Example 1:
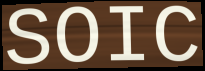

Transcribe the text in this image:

SOIC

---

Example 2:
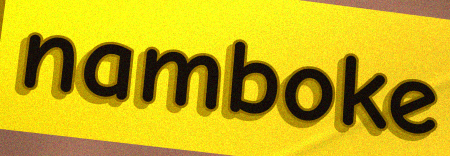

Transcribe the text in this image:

namboke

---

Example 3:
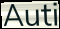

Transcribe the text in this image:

Auti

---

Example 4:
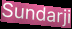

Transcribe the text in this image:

Sundarji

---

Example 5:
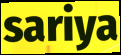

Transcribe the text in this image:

sariya